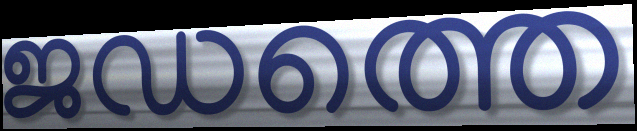
ജഡത്തെ